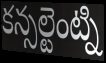
కన్సల్టెంట్ని